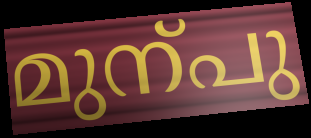
മുന്പു